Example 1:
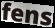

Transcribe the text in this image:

fens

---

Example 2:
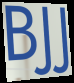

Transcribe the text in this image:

BJJ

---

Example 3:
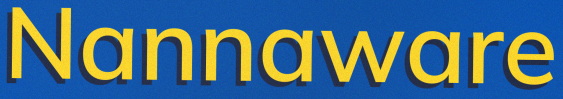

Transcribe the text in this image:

Nannaware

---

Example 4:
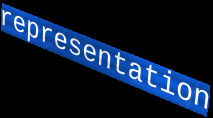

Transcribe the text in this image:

representation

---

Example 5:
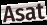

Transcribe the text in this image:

Asat